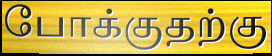
போக்குதற்கு